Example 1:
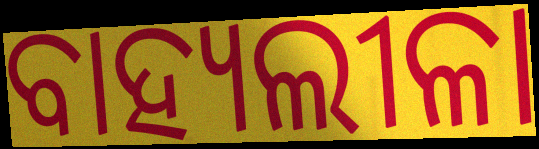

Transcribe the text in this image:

ବାହ୍ୟଲୀଳା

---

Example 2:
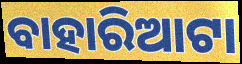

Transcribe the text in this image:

ବାହାରିଆଟା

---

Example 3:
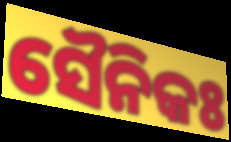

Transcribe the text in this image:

ସୈନିକଃ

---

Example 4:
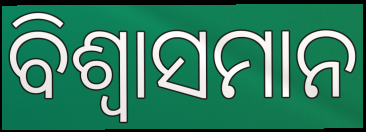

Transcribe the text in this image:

ବିଶ୍ଵାସମାନ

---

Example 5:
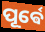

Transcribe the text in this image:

ପୂର୍ଵେ